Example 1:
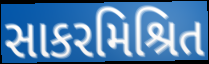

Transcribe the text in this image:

સાકરમિશ્રિત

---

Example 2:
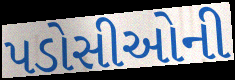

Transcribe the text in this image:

પડોસીઓની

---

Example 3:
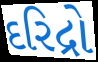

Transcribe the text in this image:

દરિદ્રો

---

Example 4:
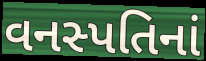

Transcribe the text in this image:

વનસ્પતિનાં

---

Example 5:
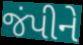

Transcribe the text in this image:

જંપીને